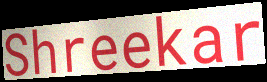
Shreekar